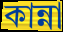
কান্না